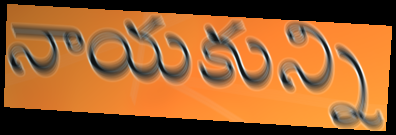
నాయకున్ని